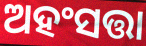
ଅହଂସତ୍ତା